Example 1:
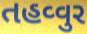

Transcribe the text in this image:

તહવ્વુર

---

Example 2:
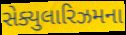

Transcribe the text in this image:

સેક્યુલારિઝમના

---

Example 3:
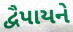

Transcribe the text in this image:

દ્વૈપાયને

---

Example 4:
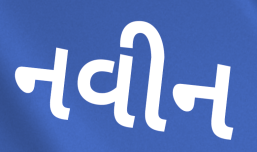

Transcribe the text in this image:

નવીન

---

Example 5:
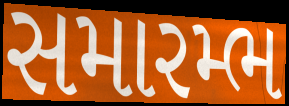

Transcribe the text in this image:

સમારમ્ભ